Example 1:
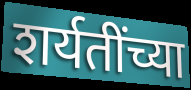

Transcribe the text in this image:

शर्यतींच्या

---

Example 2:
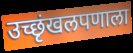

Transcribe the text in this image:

उच्छृंखलपणाला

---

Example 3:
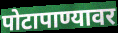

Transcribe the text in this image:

पोटापाण्यावर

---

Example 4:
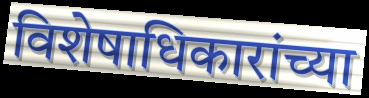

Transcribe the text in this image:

विशेषाधिकारांच्या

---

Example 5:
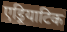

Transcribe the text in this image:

एड्रियाटिक